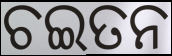
ଚଇତନ